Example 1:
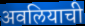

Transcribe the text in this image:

अवलियाची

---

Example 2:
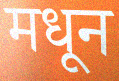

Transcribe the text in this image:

मधून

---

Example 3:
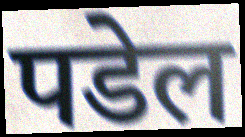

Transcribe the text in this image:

पडेल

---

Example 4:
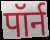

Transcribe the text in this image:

पॉर्न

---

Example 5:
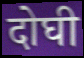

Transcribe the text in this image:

दोघी